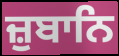
ਜ਼ੁਬਾਨਿ